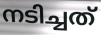
നടിച്ചത്